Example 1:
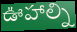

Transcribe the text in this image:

ఊహాల్ని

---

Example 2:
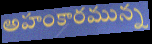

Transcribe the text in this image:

అహంకారమున్న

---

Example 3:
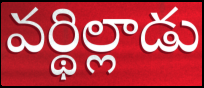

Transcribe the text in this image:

వర్థిల్లాడు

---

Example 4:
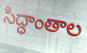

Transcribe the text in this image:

సిద్ధాంతాల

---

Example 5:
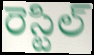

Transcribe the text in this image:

రెస్టిల్